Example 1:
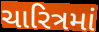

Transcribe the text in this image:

ચારિત્રમાં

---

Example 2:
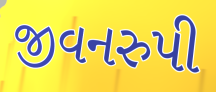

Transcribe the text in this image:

જીવનરુપી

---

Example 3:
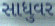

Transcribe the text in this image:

સાધુવર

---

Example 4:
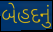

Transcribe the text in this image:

બેહદનું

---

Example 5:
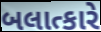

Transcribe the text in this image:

બલાત્કારે